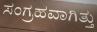
ಸಂಗ್ರಹವಾಗಿತ್ತು